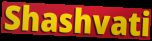
Shashvati